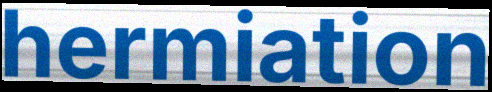
hermiation